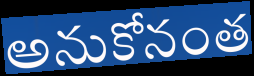
అనుకోనంత